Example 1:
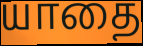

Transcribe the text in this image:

யாதை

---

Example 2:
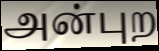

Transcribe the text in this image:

அன்புற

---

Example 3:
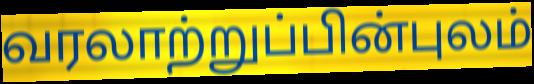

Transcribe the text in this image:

வரலாற்றுப்பின்புலம்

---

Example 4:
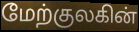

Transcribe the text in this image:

மேற்குலகின்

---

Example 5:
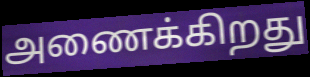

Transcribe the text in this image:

அணைக்கிறது